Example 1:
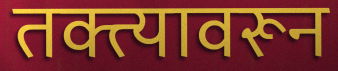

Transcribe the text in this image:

तक्त्यावरून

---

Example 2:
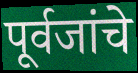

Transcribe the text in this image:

पूर्वजांचे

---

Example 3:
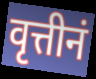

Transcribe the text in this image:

वृत्तीनं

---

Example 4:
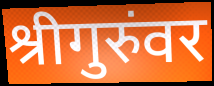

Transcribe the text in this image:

श्रीगुरुंवर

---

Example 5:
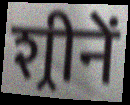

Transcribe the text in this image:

श्रीनें